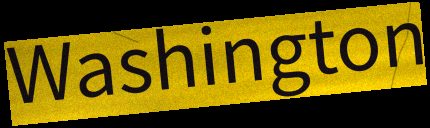
Washington